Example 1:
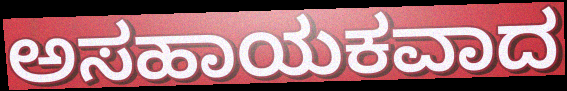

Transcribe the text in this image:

ಅಸಹಾಯಕವಾದ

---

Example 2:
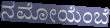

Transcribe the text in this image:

ನಮೋಯೆಂಬೆ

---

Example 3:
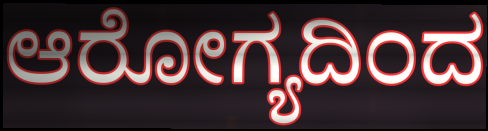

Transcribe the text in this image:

ಆರೋಗ್ಯದಿಂದ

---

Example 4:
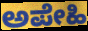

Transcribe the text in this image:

ಅಪೇಹಿ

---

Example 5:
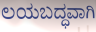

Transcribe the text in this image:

ಲಯಬದ್ಧವಾಗಿ